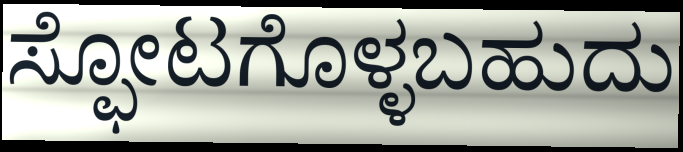
ಸ್ಫೋಟಗೊಳ್ಳಬಹುದು